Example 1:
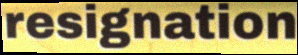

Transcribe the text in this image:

resignation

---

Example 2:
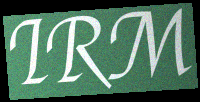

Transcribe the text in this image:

IRM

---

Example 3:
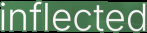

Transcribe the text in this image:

inflected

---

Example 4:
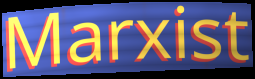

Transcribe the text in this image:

Marxist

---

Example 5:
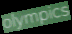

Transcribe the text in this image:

olympics